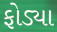
ફોડ્યા